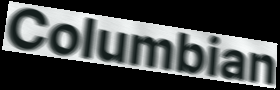
Columbian